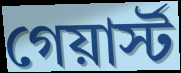
গেয়ার্স্ট